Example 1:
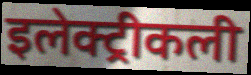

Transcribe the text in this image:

इलेक्ट्रीकली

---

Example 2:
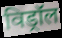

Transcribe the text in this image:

विड्रॉल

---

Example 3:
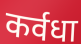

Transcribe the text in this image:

कर्वधा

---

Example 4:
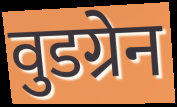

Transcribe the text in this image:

वुडग्रेन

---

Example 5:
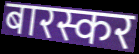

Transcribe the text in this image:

बारस्कर